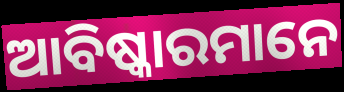
ଆବିଷ୍କାରମାନେ